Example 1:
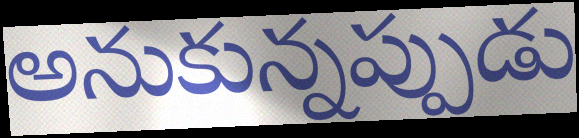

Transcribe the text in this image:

అనుకున్నప్పుడు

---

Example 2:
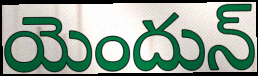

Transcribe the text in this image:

యెందున్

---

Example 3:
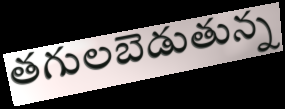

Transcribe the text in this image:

తగులబెడుతున్న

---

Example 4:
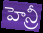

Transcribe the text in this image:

హెన్రీ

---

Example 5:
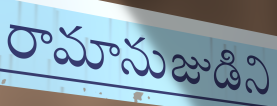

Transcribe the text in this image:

రామానుజుడిని